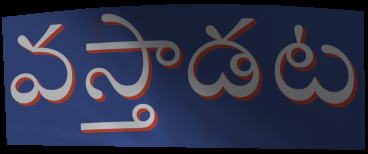
వస్తాడట